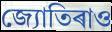
জ্যোতিৰাও